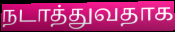
நடாத்துவதாக